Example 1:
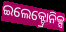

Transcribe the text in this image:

ଇଲେକ୍ଟ୍ରୋନିକ୍ସ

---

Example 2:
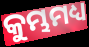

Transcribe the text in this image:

କୁମ୍ଭମଧ୍ୟ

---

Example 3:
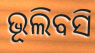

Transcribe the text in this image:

ଭୂଲିବସି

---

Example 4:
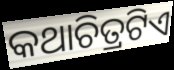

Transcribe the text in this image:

କଥାଚିତ୍ରଟିଏ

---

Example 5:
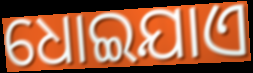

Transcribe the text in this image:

ଧୋଇଯାଏ